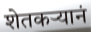
शेतकर्‍यानं